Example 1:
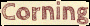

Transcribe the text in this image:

Corning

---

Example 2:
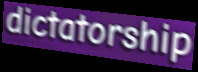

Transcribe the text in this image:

dictatorship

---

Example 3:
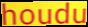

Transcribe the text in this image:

houdu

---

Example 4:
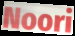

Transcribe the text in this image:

Noori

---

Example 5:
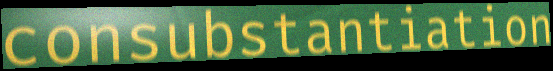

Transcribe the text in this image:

consubstantiation